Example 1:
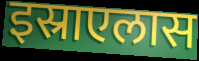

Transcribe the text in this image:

इस्राएलास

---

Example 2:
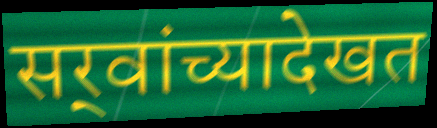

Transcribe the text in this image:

सर्वांच्यादेखत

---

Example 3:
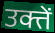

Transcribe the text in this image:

उक्तें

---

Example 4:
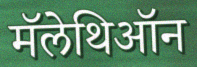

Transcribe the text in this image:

मॅलेथिऑन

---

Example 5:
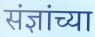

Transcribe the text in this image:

संज्ञांच्या